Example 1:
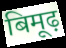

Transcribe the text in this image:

बिमूढ़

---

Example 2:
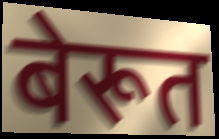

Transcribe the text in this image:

बेरूत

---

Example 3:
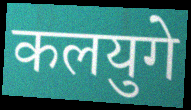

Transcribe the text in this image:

कलयुगे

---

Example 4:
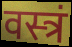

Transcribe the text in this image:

वस्त्रं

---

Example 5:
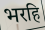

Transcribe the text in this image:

भरहि